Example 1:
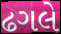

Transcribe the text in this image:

ઢગલે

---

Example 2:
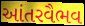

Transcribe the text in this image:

આંતરવૈભવ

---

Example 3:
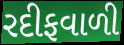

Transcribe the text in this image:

રદીફવાળી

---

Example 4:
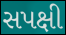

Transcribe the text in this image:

સપક્ષી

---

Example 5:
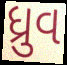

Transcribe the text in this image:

ધ્રુવ